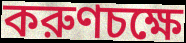
করুণচক্ষে